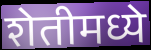
शेतीमध्ये